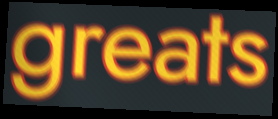
greats